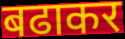
बढाकर